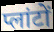
प्लांटों